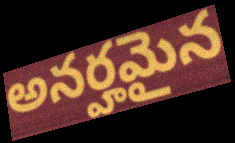
అనర్హమైన